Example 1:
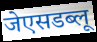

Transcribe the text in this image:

जेएसडब्‍लू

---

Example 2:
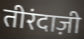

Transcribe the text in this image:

तीरंदाज़ी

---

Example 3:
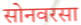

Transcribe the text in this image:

सोनवरसा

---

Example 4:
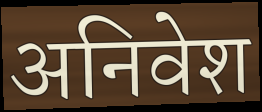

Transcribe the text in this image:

अनिवेश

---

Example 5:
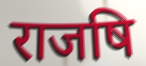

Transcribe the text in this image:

राजषि